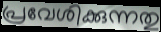
പ്രവേശിക്കുന്നതു